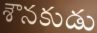
శౌనకుడు